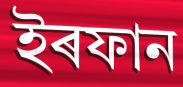
ইৰফান